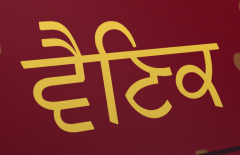
ਵੈਣਿਕ